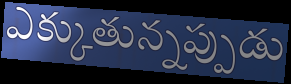
ఎక్కుతున్నప్పుడు